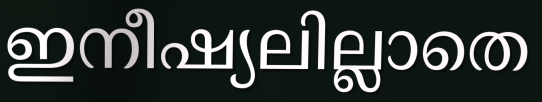
ഇനീഷ്യലില്ലാതെ